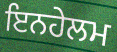
ਇਨਹੇਲਮ